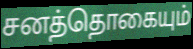
சனத்தொகையும்